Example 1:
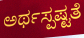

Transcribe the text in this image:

ಅರ್ಥಸ್ಪಷ್ಟತೆ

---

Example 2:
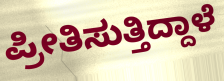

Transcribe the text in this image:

ಪ್ರೀತಿಸುತ್ತಿದ್ದಾಳೆ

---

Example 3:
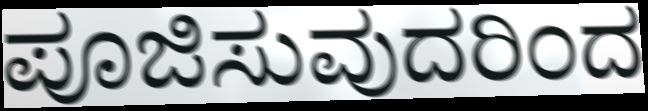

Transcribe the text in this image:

ಪೂಜಿಸುವುದರಿಂದ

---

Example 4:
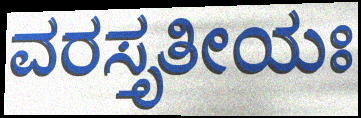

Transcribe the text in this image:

ವರಸ್ತೃತೀಯಃ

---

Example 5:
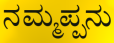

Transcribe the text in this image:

ನಮ್ಮಪ್ಪನು